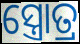
ସ୍ତ୍ରୋତ୍ର